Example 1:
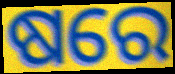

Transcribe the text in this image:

ଷରେ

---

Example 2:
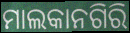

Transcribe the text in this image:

ମାଲକାନଗିରି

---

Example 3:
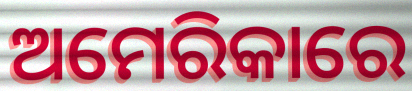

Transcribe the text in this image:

ଅମେରିକାରେ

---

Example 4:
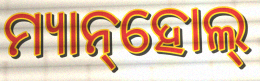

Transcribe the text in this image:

ମ୍ୟାନ୍‌ହୋଲ୍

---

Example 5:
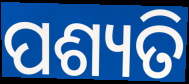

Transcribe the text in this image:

ପଶ୍ୟତି